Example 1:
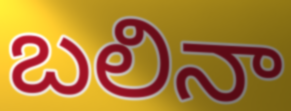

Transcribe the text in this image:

బలినా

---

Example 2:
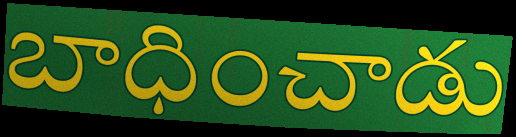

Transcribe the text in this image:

బాధించాడు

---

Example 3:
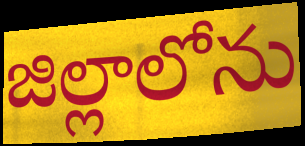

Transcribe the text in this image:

జిల్లాలోను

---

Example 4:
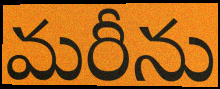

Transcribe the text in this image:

మరీను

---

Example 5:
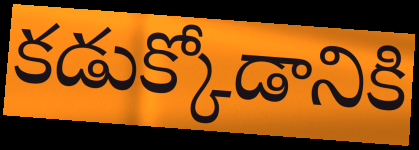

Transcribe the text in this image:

కడుక్కోడానికి